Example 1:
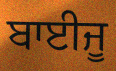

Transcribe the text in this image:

ਬਾਈਜੂ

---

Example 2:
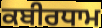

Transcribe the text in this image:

ਕਬੀਰਧਾਮ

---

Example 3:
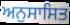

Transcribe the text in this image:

ਅਨੁਸਾਸਿਤ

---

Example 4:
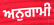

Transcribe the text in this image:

ਅਨੁਗਾਮੀ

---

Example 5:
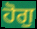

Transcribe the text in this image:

ਹੋਗੁ